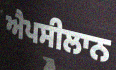
ਐਪਸੀਲਾਨ